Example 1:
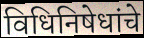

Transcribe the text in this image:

विधिनिषेधांचे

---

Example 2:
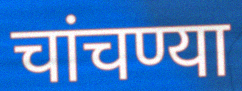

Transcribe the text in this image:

चांचण्या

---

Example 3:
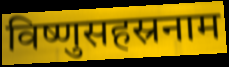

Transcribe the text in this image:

विष्णुसहस्रनाम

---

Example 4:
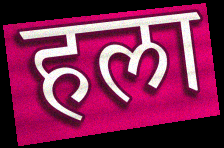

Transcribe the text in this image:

हला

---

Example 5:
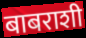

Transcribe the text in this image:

बाबराशी